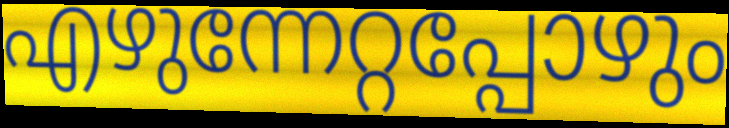
എഴുന്നേറ്റപ്പോഴും